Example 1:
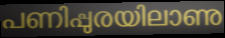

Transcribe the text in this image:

പണിപ്പുരയിലാണു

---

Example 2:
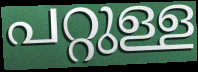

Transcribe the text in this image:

പറ്റുള്ള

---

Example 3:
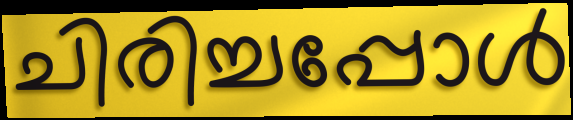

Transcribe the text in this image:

ചിരിച്ചപ്പോൾ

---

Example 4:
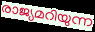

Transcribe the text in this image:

രാജ്യമറിയുന്ന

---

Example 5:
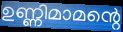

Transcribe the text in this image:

ഉണ്ണിമാമന്റെ